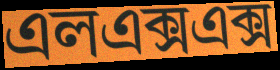
এলএক্সএক্স